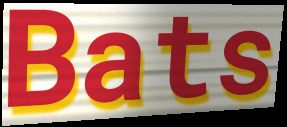
Bats